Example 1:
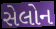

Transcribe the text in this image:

સેલોન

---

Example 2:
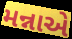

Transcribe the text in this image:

મન્નાએ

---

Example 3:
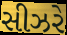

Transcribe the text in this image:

સીઝરે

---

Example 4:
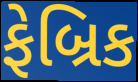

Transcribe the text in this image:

ફેબ્રિક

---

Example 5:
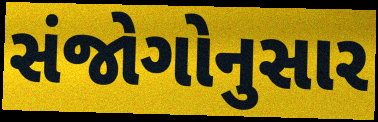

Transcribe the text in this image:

સંજોગોનુસાર